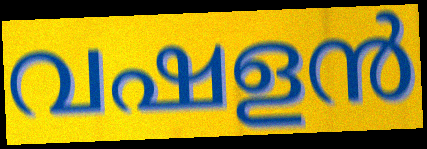
വഷളൻ